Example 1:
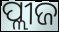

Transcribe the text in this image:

ପ୍ଲୀଜ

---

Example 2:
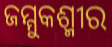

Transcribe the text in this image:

ଜମ୍ମୁକଶ୍ମୀର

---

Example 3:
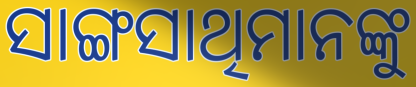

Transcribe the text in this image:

ସାଙ୍ଗସାଥିମାନଙ୍କୁ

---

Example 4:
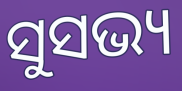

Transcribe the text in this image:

ସୁସଭ୍ୟ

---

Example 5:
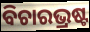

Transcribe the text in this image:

ବିଚାରଭ୍ରଷ୍ଟ